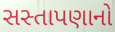
સસ્તાપણાનો